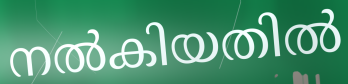
നൽകിയതിൽ